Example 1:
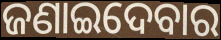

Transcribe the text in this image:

ଜଣାଇଦେବାର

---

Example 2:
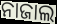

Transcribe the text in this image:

ନାଜାଲ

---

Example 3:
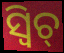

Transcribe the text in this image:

ସ୍ଵିଚ୍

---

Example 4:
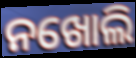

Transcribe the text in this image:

ନଖୋଲି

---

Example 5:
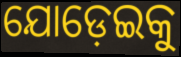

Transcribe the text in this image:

ଯୋଡ଼େଇକୁ